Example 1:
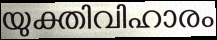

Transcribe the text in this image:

യുക്തിവിഹാരം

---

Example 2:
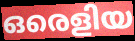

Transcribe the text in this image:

ഒരെളിയ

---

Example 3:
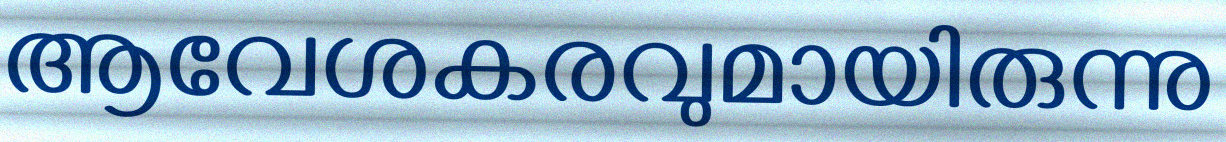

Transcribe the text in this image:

ആവേശകരവുമായിരുന്നു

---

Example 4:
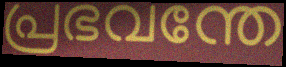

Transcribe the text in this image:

പ്രഭവന്തേ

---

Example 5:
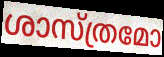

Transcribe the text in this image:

ശാസ്ത്രമോ